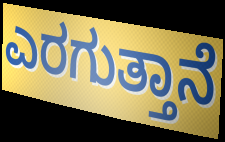
ಎರಗುತ್ತಾನೆ